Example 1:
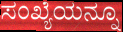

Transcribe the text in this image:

ಸಂಖ್ಯೆಯನ್ನೂ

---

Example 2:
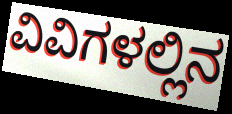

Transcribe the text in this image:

ವಿವಿಗಳಲ್ಲಿನ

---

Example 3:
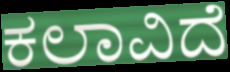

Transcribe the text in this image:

ಕಲಾವಿದೆ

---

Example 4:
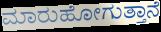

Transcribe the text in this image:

ಮಾರುಹೋಗುತ್ತಾನೆ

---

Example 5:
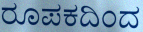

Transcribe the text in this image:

ರೂಪಕದಿಂದ